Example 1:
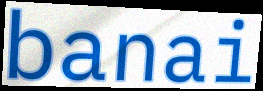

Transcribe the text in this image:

banai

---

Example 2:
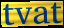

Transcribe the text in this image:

tvat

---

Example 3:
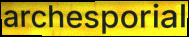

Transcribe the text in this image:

archesporial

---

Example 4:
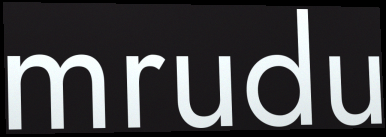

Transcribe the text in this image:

mrudu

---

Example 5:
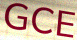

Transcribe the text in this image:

GCE